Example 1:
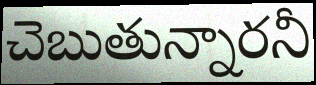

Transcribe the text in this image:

చెబుతున్నారనీ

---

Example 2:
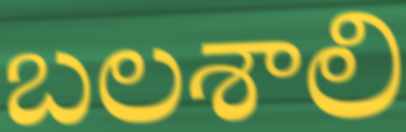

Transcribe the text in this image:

బలశాలి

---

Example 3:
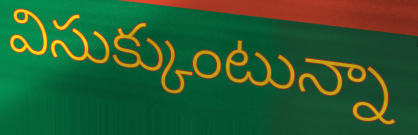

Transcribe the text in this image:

విసుక్కుంటున్నా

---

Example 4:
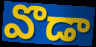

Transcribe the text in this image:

వొడా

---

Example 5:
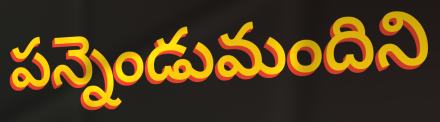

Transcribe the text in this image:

పన్నెండుమందిని